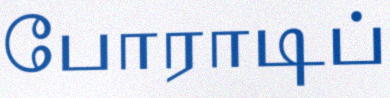
போராடிப்